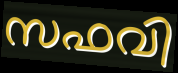
സഫവി